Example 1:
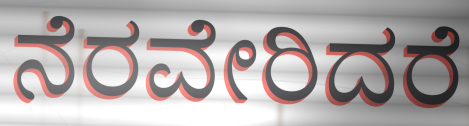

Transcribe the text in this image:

ನೆರವೇರಿದರೆ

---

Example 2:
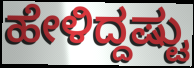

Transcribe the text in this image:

ಹೇಳಿದ್ದಷ್ಟು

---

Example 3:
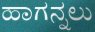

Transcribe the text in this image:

ಹಾಗನ್ನಲು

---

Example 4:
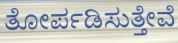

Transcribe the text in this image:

ತೋರ್ಪಡಿಸುತ್ತೇವೆ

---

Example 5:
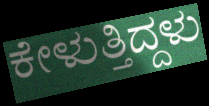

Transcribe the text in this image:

ಕೇಳುತ್ತಿದ್ದಳು